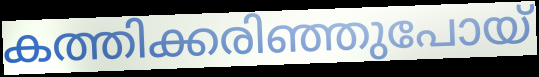
കത്തിക്കരിഞ്ഞുപോയ്